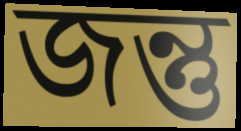
জন্তু